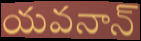
యవనాన్